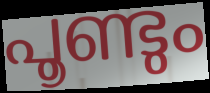
പൂണ്ടും